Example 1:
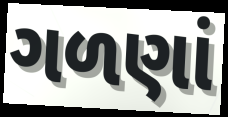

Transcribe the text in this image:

ગળણાં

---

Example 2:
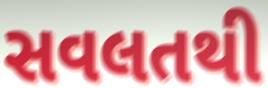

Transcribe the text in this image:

સવલતથી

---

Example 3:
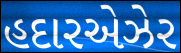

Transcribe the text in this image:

હદારએઝેર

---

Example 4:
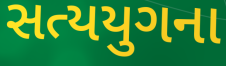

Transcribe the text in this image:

સત્યયુગના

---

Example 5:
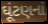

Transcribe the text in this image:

ઘૂંટણનાં